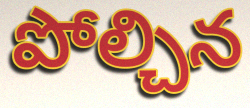
పోల్చిన